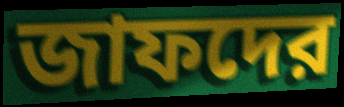
জাফদের